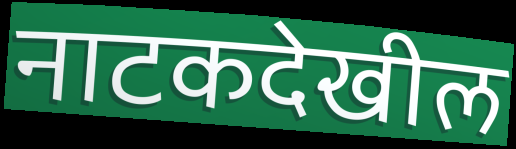
नाटकदेखील